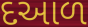
દઆળ